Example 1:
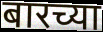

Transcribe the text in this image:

बारच्या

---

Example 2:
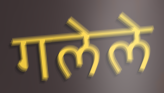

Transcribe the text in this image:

गलेले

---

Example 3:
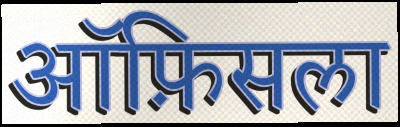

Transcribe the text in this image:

ऑफ़िसला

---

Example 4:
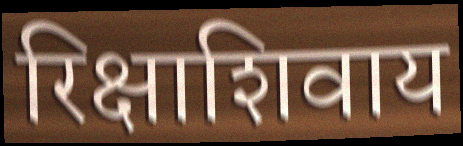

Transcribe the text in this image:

रिक्षाशिवाय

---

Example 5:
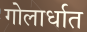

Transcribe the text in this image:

गोलार्धात